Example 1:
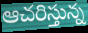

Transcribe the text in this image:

ఆచరిస్తున్న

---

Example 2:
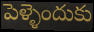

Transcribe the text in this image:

పెళ్ళెందుకు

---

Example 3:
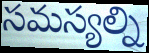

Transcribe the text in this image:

సమస్యల్ని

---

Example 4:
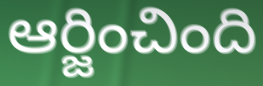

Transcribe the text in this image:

ఆర్జించింది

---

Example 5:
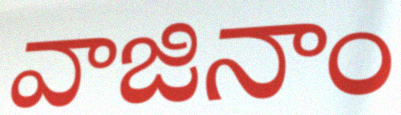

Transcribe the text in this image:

వాజినాం